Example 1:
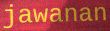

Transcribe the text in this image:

jawanan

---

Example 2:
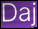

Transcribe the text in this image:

Daj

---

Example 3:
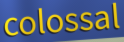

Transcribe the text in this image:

colossal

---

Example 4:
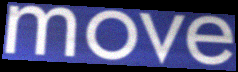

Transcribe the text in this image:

move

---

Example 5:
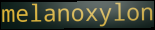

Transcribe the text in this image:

melanoxylon